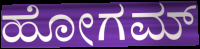
ಹೋಗಮ್